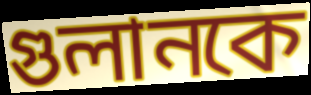
গুলানকে